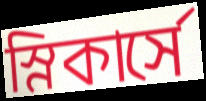
স্নিকার্সে